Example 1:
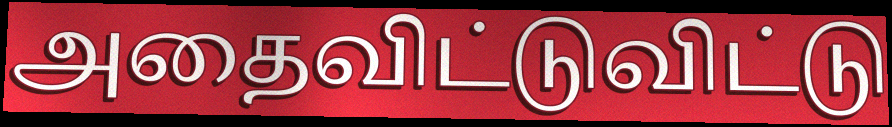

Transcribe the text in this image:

அதைவிட்டுவிட்டு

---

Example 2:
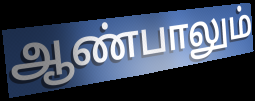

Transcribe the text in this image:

ஆண்பாலும்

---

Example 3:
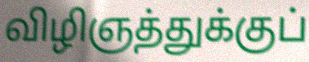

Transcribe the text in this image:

விழிஞத்துக்குப்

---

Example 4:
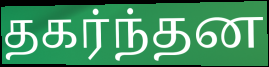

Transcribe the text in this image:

தகர்ந்தன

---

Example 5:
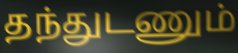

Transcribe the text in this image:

தந்துடணும்